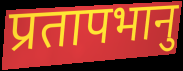
प्रतापभानु